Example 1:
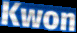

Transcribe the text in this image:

Kwon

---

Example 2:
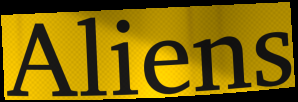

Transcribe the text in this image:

Aliens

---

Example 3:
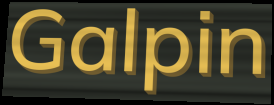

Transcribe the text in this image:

Galpin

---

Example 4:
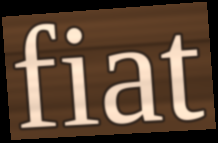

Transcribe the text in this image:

fiat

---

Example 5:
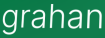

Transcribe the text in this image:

grahan